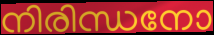
നിരിന്ധനോ